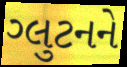
ગ્લુટનને